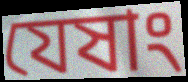
যেষাং